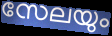
സേലയും